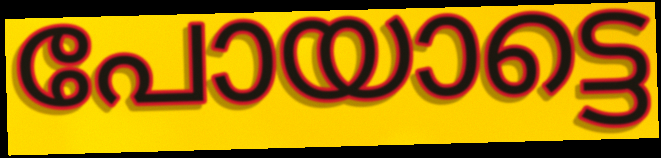
പോയാട്ടെ